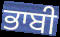
ਭਾਬੀ